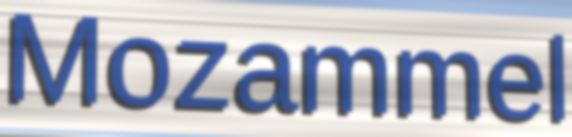
Mozammel